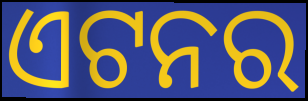
ଏଟନର